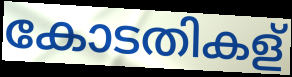
കോടതികള്